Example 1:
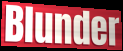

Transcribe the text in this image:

Blunder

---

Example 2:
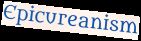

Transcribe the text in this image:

Epicureanism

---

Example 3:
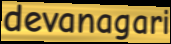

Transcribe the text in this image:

devanagari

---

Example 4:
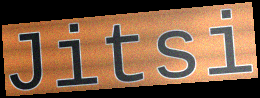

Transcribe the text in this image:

Jitsi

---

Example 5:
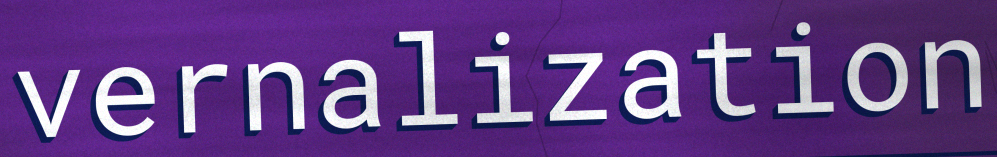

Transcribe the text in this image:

vernalization